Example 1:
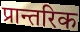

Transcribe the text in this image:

प्रान्तरिक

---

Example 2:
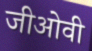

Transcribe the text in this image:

जीओवी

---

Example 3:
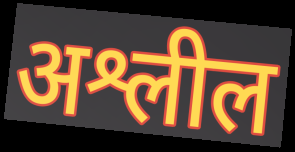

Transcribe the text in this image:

अश्लील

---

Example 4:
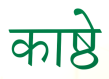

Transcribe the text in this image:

काष्ठे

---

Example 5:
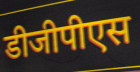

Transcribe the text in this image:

डीजीपीएस